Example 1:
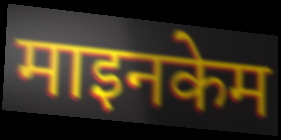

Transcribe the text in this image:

माइनकेम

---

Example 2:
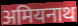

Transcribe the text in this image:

अमियनाथ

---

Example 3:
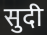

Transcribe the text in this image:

सुदी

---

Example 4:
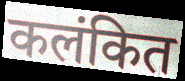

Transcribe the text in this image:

कलंकित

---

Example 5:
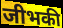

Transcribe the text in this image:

जीभकी